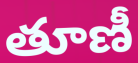
తూణీ